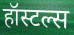
हॉस्टल्स